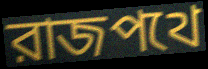
রাজপথে